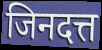
जिनदत्त